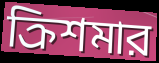
ক্রিশমার